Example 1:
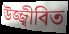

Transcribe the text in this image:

উজ্জ্বীবিত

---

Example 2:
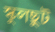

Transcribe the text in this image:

স্কুলছুট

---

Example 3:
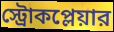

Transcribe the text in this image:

স্ট্রোকপ্লেয়ার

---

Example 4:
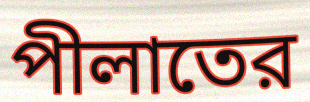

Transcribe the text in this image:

পীলাতের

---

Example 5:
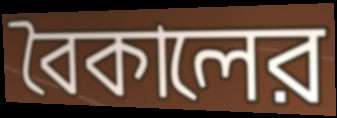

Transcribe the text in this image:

বৈকালের